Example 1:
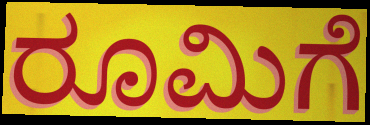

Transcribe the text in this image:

ರೂಮಿಗೆ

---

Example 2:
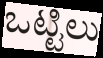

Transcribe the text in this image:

ಒಟ್ಟಿಲು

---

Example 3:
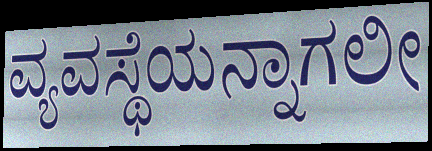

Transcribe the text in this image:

ವ್ಯವಸ್ಥೆಯನ್ನಾಗಲೀ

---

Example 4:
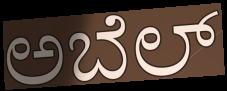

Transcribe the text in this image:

ಅಬೆಲ್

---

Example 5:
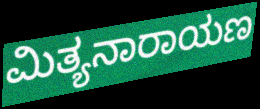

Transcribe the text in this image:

ಮಿತ್ಯನಾರಾಯಣ